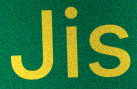
Jis